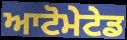
ਆਟੋਮੇਟੇਡ